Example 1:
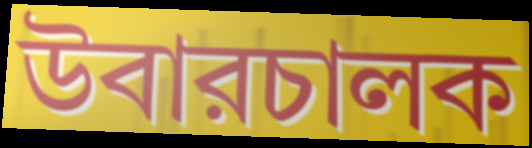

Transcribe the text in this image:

উবারচালক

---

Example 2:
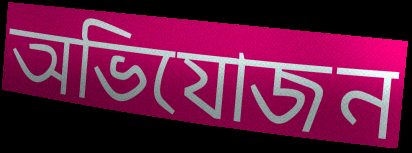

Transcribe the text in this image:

অভিযোজন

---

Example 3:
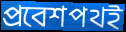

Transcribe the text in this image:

প্রবেশপথই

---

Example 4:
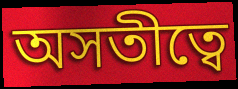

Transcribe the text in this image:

অসতীত্বে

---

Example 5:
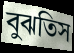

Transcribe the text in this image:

বুঝতিস